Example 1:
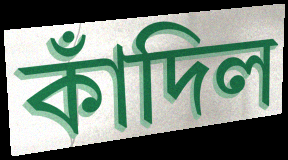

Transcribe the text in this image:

কাঁদিল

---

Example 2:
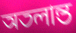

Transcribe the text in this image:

অতলান্ত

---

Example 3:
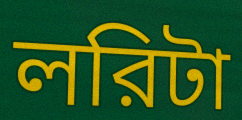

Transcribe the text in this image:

লরিটা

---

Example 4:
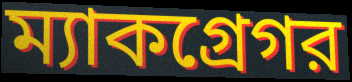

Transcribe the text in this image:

ম্যাকগ্রেগর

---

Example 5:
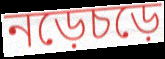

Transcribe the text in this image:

নড়েচড়ে